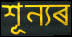
শূন্যৰ